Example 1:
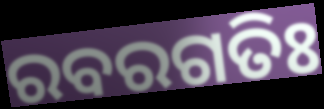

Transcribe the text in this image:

ରବରଗତିଃ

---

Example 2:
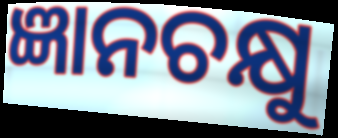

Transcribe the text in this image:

ଜ୍ଞାନଚକ୍ଷୁ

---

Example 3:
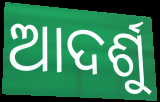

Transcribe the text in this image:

ଆଦର୍ଶୁ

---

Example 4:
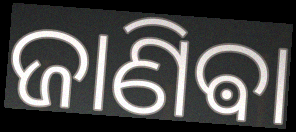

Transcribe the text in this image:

ଜାଣିଵା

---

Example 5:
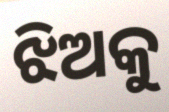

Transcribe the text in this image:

ଝିଅକୁ